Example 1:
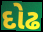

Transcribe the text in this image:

દોઢ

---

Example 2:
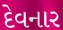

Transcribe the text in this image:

દેવનાર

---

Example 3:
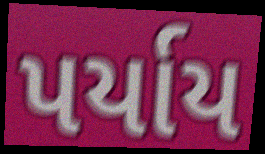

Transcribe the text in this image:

પર્યાય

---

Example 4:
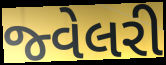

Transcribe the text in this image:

જ્વેલરી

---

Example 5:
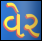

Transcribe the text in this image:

વેર